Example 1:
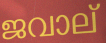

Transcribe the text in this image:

ജവാല്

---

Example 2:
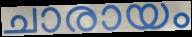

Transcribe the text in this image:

ചാരായം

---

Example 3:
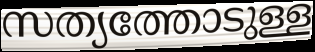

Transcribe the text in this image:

സത്യത്തോടുള്ള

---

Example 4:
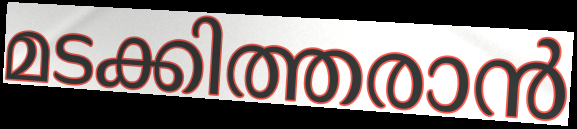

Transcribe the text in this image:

മടക്കിത്തരാൻ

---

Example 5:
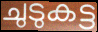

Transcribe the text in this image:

ചുടുകട്ട